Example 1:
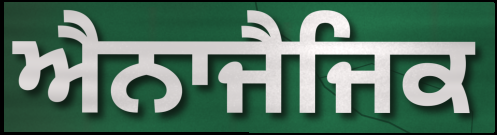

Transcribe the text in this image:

ਐਨਾਜੈਜਿਕ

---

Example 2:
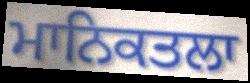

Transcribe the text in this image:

ਮਾਨਿਕਤਲਾ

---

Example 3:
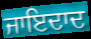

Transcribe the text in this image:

ਜਾਇਦਾਦ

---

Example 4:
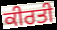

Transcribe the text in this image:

ਕੀਰਤੀ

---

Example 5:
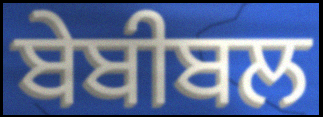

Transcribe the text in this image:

ਬੇਬੀਬਲ